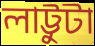
লাট্টুটা